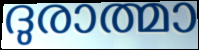
ദുരാത്മാ